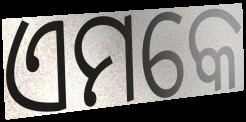
ଏମକେ